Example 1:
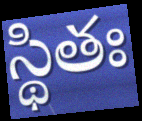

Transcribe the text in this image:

స్థితః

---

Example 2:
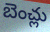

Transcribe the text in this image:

బెంచ్లు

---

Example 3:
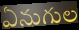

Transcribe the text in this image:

ఏనుగుల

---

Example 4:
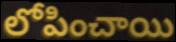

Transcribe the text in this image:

లోపించాయి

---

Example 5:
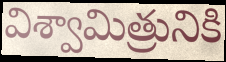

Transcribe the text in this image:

విశ్వామిత్రునికి